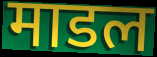
माडल